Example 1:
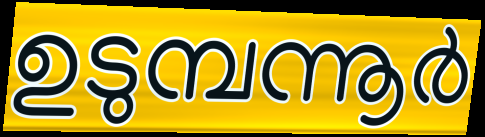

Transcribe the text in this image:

ഉടുമ്പന്നൂർ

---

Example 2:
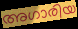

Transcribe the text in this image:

അഗാരിയ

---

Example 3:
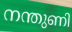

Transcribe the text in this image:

നന്തുണി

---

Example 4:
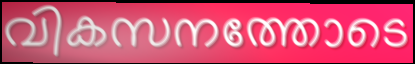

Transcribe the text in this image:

വികസനത്തോടെ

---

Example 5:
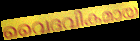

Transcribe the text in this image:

വൈദവികമായ